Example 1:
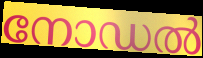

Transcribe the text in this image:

നോഡൽ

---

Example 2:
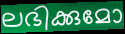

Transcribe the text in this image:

ലഭിക്കുമോ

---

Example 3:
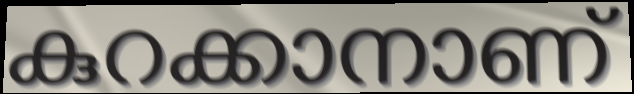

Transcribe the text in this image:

കുറക്കാനാണ്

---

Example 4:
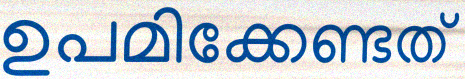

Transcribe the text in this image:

ഉപമിക്കേണ്ടത്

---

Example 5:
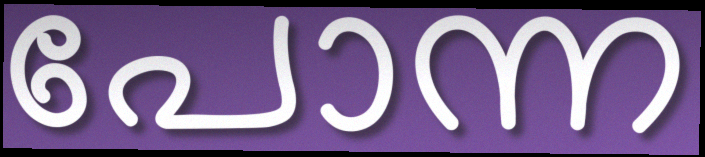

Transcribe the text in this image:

പോന്ന